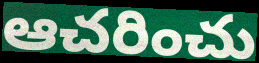
ఆచరించు